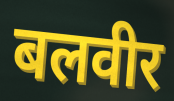
बलवीर